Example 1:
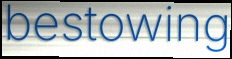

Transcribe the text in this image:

bestowing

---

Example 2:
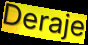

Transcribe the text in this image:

Deraje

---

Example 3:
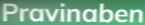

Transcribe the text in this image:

Pravinaben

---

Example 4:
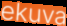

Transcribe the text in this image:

ekuva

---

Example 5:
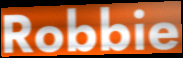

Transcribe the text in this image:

Robbie